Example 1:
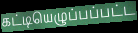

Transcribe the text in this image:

கட்டியெழுப்பப்பட்ட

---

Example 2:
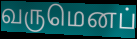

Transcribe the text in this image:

வருமெனப்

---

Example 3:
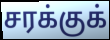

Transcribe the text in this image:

சரக்குக்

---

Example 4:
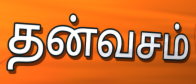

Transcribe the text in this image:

தன்வசம்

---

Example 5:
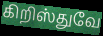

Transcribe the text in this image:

கிறிஸ்துவே